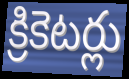
క్రికెటర్లు